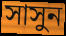
সাসুন